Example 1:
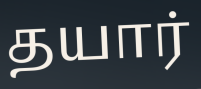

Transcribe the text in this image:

தயார்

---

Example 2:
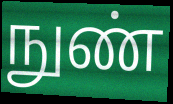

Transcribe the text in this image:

நுண்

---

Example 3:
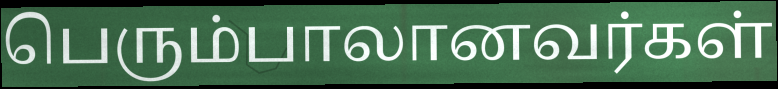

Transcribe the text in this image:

பெரும்பாலானவர்கள்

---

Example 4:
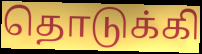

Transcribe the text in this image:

தொடுக்கி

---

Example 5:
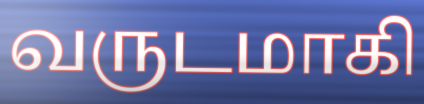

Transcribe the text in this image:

வருடமாகி